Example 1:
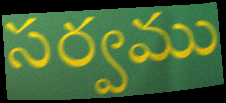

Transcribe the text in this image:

సర్వము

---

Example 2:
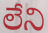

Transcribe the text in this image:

లేని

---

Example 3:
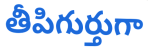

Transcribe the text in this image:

తీపిగుర్తుగా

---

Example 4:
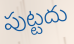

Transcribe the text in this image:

పుట్టదు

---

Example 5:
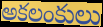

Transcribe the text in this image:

అకలంకులు